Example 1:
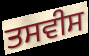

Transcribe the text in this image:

ਤਸਵੀਸ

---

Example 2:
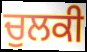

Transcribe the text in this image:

ਚੁਲਕੀ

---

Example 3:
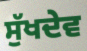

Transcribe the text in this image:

ਸੁੱਖਦੇਵ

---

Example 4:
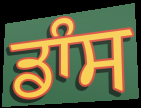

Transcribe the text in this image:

ਡਾੰਸ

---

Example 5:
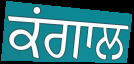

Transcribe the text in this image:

ਕਂਗਾਲ